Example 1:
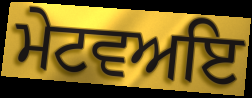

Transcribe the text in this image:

ਮੇਟਵਅਇ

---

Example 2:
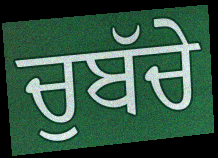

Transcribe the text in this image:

ਚੁਬੱਚੇ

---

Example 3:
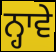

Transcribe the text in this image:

ਨ੍ਹਾਵੇ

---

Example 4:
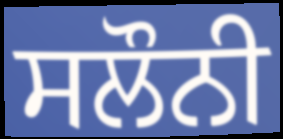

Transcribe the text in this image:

ਸਲੌਨੀ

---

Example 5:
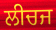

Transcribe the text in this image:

ਲੀਚਜ